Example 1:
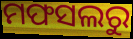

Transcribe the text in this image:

ମଫସଲରୁ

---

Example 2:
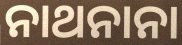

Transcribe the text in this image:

ନାଥନାନା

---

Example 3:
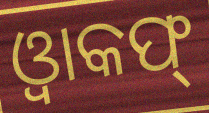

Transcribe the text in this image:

ଓ୍ଵାକଫ୍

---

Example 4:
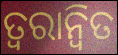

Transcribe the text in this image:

ତ୍ବରାନ୍ବିତ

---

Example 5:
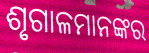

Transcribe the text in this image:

ଶୃଗାଳମାନଙ୍କର